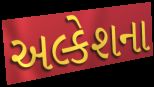
અલ્કેશના